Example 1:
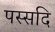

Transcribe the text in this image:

पस्सदि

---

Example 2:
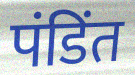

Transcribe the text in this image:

पंडिंत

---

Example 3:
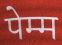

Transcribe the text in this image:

पेम्म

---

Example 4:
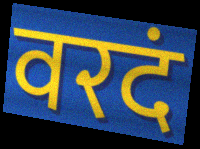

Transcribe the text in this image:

वरदं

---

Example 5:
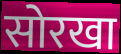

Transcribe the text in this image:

सोरखा